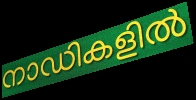
നാഡികളിൽ